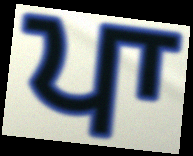
ਪਾ